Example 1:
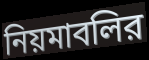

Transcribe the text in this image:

নিয়মাবলির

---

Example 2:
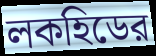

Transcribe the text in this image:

লকহিডের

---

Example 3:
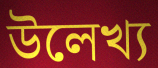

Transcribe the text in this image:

উলেখ্য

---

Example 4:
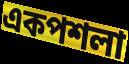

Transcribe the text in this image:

একপশলা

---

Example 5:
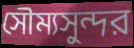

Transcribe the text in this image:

সৌম্যসুন্দর